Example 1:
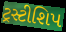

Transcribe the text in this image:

ટ્રસ્ટીશિપ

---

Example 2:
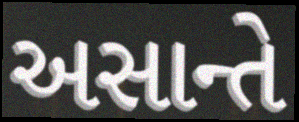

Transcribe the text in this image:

અસાન્તે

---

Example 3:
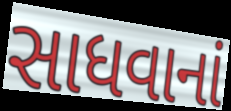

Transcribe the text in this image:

સાધવાનાં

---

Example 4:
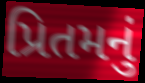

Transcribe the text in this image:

પ્રિતમનું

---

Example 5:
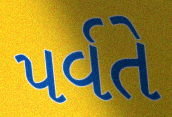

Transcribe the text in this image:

પર્વતે